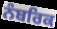
ਨੰਬਰਿਕ